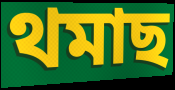
থমাছ